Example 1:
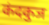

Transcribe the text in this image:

कंदकुज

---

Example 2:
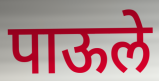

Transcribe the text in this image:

पाऊले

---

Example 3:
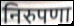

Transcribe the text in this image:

निरुपणा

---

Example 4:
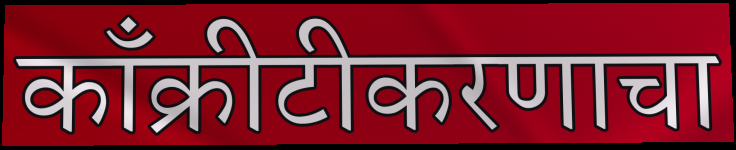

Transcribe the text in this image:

काँक्रीटीकरणाचा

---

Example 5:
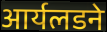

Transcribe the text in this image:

आर्यलडने